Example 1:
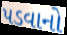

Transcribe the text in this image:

પડવાનો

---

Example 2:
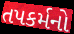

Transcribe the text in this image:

તપકર્મનો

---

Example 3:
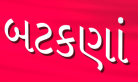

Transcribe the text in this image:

બટકણાં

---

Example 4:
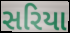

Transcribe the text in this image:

સરિયા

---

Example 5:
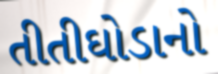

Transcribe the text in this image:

તીતીઘોડાનો